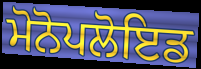
ਮੋਨੋਪਲੋਇਡ